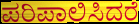
ಪರಿಪಾಲಿಸಿದರೆ